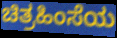
ಚಿತ್ರಹಿಂಸೆಯ